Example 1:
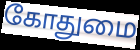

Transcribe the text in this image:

கோதுமை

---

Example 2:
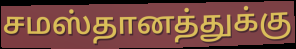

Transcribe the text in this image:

சமஸ்தானத்துக்கு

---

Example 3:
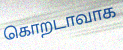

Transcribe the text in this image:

கொறடாவாக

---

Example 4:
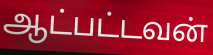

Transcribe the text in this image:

ஆட்பட்டவன்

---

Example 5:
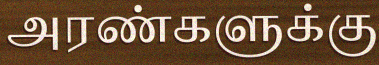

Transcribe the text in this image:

அரண்களுக்கு